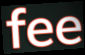
fee